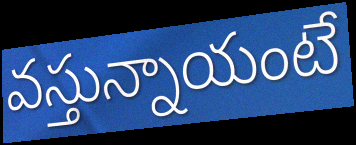
వస్తున్నాయంటే